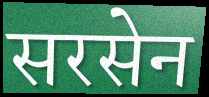
सरसेन